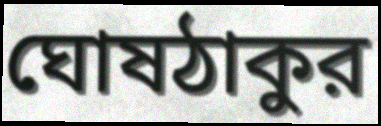
ঘোষঠাকুর